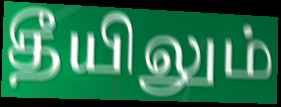
தீயிலும்